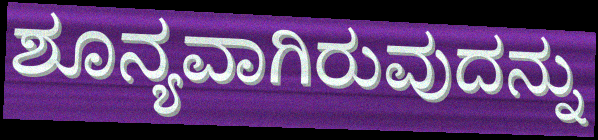
ಶೂನ್ಯವಾಗಿರುವುದನ್ನು